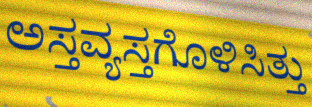
ಅಸ್ತವ್ಯಸ್ತಗೊಳಿಸಿತ್ತು